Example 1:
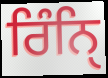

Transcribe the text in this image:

ਰਿੰਨਿੑ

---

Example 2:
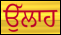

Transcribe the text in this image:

ਉੱਲਾਹ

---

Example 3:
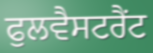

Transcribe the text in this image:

ਫੁਲਵੈਸਟਰੈਂਟ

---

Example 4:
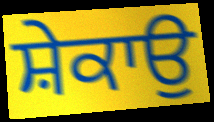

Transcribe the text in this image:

ਸ਼ੇਕਾਉ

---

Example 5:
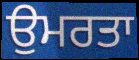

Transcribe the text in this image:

ਉਮਰਤਾ